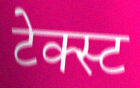
टेक्स्ट